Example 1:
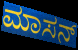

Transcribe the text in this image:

ಮಾಸನ್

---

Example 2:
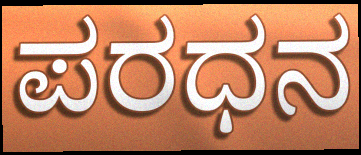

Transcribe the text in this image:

ಪರಧನ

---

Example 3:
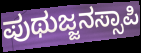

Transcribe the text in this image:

ಪುಥುಜ್ಜನಸ್ಸಾಪಿ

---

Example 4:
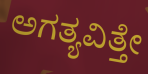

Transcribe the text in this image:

ಅಗತ್ಯವಿತ್ತೇ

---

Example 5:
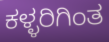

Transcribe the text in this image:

ಕಳ್ಳರಿಗಿಂತ